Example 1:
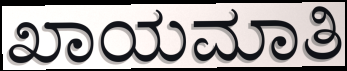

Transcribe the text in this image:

ಖಾಯಮಾತಿ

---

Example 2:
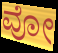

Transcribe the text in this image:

ವೋ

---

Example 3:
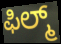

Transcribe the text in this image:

ಫಿಲ್ಮ್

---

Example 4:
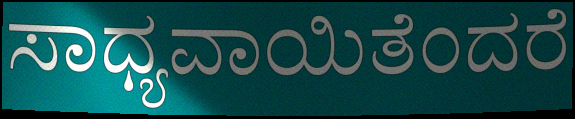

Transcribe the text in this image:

ಸಾಧ್ಯವಾಯಿತೆಂದರೆ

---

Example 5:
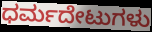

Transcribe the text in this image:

ಧರ್ಮದೇಟುಗಳು